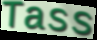
Tass